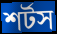
শর্টস